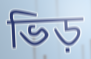
ভিড়